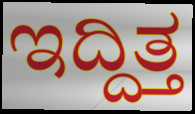
ಇದ್ದಿತ್ತ